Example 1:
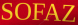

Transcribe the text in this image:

SOFAZ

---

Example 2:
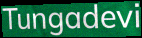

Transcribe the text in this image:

Tungadevi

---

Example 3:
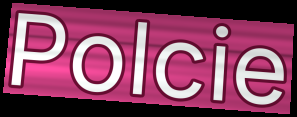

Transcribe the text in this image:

Polcie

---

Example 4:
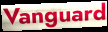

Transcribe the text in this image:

Vanguard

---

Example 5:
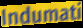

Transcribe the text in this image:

Indumati